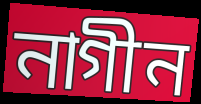
নাগীন